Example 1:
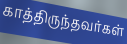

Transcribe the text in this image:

காத்திருந்தவர்கள்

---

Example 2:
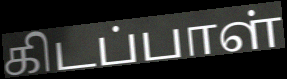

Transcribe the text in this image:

கிடப்பாள்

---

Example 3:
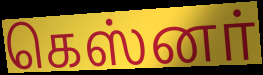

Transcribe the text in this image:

கெஸ்னர்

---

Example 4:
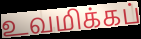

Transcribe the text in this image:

உவமிக்கப்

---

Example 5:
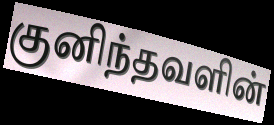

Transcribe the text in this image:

குனிந்தவளின்